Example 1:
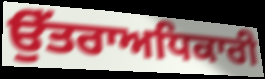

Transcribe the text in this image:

ਉੱਤਰਾਅਧਿਕਾਰੀ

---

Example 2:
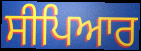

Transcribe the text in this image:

ਸੀਪਿਆਰ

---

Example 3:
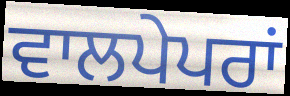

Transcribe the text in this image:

ਵਾਲਪੇਪਰਾਂ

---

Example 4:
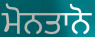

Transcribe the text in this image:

ਮੋਨਤਾਨੋ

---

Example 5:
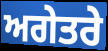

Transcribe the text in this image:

ਅਗੇਤਰੇ